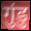
गुंडु